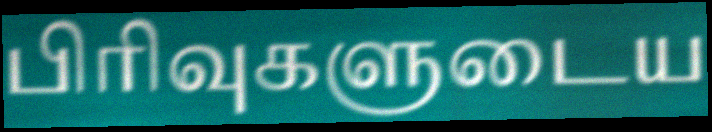
பிரிவுகளுடைய